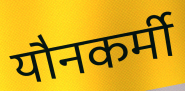
यौनकर्मी